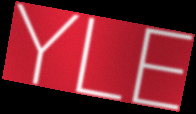
YLE